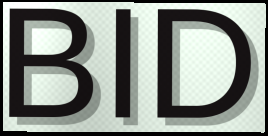
BID